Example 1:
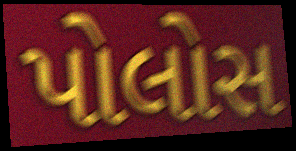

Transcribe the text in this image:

પોલોસ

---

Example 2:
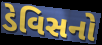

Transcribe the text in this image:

ડેવિસનો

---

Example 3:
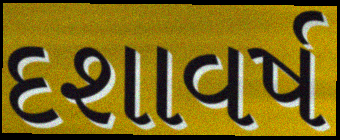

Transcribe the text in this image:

દશાવર્ષ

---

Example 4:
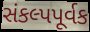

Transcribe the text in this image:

સંકલ્પપૂર્વક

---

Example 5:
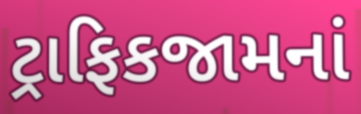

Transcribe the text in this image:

ટ્રાફિકજામનાં